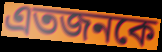
এতজনকে